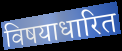
विषयाधारित